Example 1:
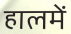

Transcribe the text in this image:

हालमें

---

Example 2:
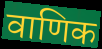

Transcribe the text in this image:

वाणिक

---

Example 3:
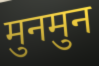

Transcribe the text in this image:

मुनमुन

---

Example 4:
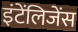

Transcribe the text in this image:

इंटेंलिजेंस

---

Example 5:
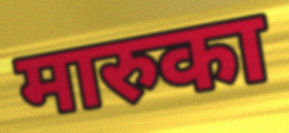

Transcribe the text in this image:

मारुका